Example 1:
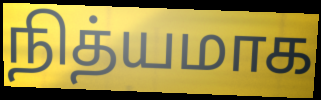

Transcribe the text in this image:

நித்யமாக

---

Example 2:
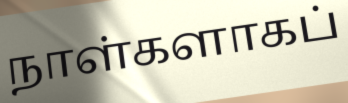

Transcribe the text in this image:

நாள்களாகப்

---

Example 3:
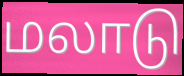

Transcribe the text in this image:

மலாடு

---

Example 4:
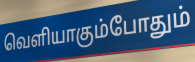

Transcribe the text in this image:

வெளியாகும்போதும்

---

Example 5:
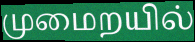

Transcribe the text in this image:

முமைறயில்